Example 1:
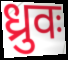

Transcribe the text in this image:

ध्रुवः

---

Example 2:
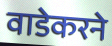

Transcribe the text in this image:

वाडेकरने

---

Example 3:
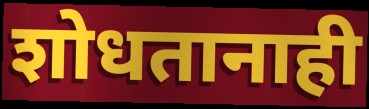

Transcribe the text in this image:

शोधतानाही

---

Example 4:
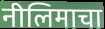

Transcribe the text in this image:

नीलिमाचा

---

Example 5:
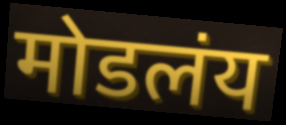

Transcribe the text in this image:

मोडलंय